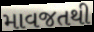
માવજતથી